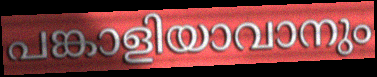
പങ്കാളിയാവാനും